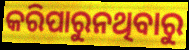
କରିପାରୁନଥିବାରୁ